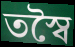
তস্বৈ